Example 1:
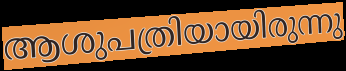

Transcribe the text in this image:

ആശുപത്രിയായിരുന്നു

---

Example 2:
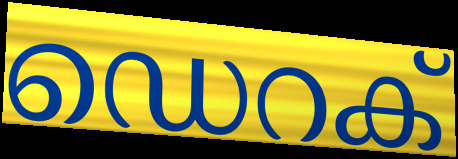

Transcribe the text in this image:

ഡെറക്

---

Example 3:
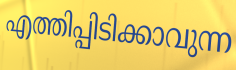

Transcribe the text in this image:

എത്തിപ്പിടിക്കാവുന്ന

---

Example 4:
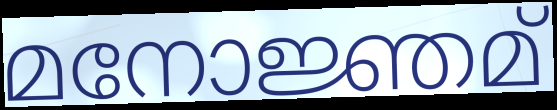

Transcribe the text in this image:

മനോജ്ഞമ്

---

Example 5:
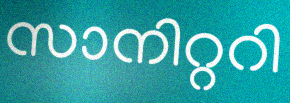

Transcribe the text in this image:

സാനിറ്ററി